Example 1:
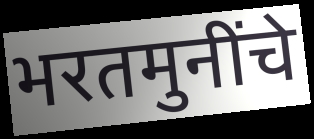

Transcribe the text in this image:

भरतमुनींचे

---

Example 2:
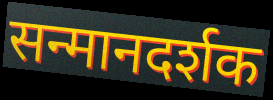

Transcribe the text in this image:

सन्मानदर्शक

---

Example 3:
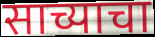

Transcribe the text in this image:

साच्याचा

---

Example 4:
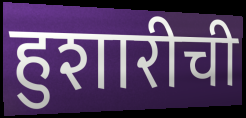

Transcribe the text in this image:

हुशारीची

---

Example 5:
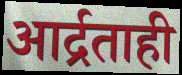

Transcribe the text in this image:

आर्द्रताही